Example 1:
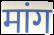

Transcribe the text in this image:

मांग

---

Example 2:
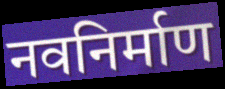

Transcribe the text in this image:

नवनिर्माण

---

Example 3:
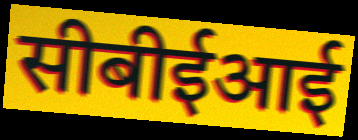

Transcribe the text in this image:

सीबीईआई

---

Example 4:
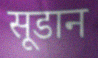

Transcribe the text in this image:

सूडान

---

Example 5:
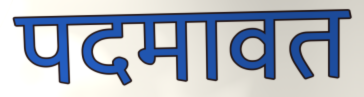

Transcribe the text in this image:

पदमावत